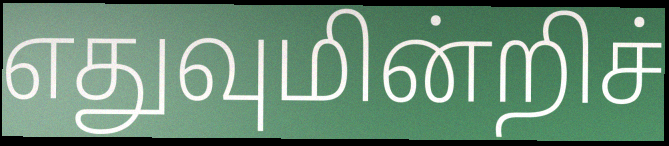
எதுவுமின்றிச்